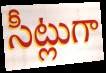
సీట్లుగా